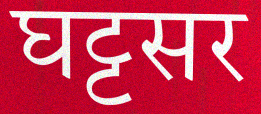
घट्टसर